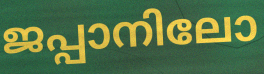
ജപ്പാനിലോ